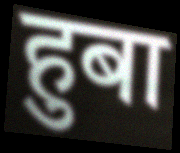
हुबा